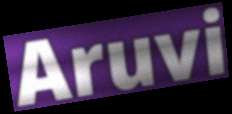
Aruvi